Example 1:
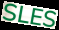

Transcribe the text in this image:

SLES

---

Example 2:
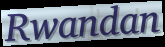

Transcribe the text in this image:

Rwandan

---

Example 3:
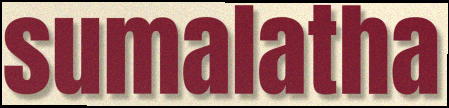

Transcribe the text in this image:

sumalatha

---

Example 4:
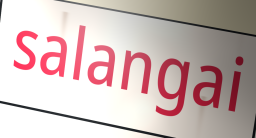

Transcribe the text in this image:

salangai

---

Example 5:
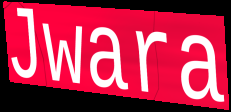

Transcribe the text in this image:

Jwara